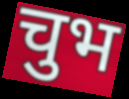
चुभ